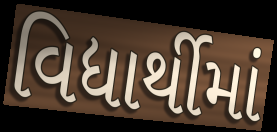
વિદ્યાર્થીમાં